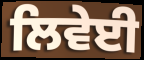
ਲਿਵੇਈ